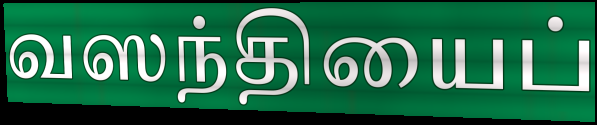
வஸந்தியைப்